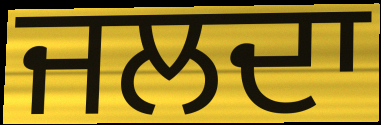
ਜਲਦਾ